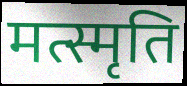
मत्स्मृति